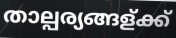
താല്പര്യങ്ങള്ക്ക്